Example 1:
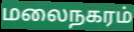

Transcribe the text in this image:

மலைநகரம்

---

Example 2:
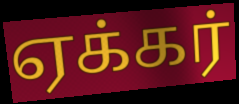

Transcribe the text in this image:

ஏக்கர்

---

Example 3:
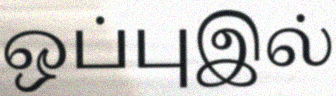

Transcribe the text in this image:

ஒப்புஇல்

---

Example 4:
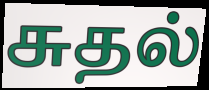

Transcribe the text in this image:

சுதல்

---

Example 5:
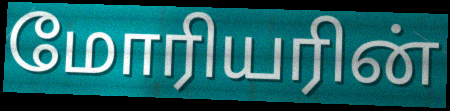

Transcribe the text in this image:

மோரியரின்